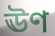
ঊণ